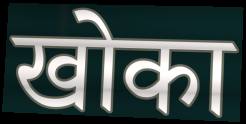
खोका